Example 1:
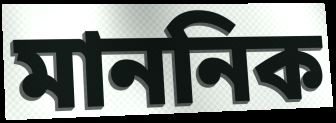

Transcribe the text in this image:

মাননিক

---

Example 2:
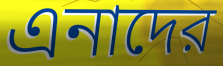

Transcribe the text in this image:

এনাদের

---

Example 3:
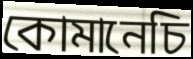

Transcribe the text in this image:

কোমানেচি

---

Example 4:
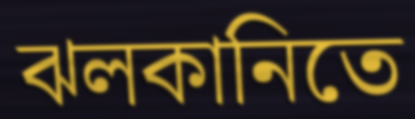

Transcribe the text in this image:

ঝলকানিতে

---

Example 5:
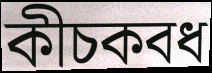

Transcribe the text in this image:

কীচকবধ